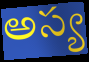
అస్య